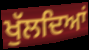
ਖੁੱਲਦਿਆਂ